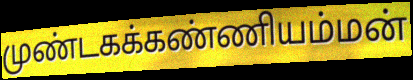
முண்டகக்கண்ணியம்மன்